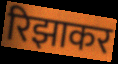
रिझाकर